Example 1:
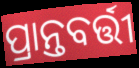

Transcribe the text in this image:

ପ୍ରାନ୍ତବର୍ତ୍ତୀ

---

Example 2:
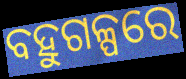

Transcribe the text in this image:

ବହୁଗଳ୍ପରେ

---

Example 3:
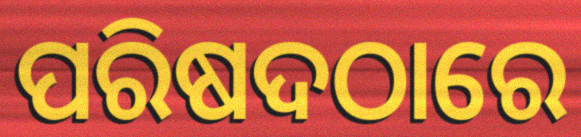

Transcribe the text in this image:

ପରିଷଦଠାରେ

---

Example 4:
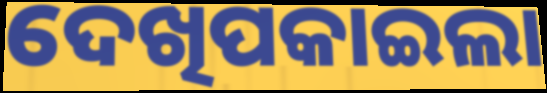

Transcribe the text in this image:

ଦେଖିପକାଇଲା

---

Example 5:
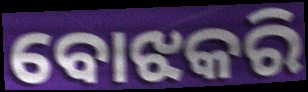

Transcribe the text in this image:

ବୋଝକରି